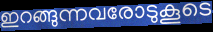
ഇറങ്ങുന്നവരോടുകൂടെ